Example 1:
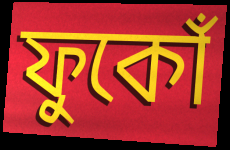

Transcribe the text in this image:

ফুকোঁ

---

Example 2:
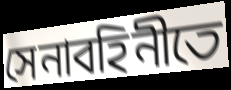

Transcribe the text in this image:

সেনাবহিনীতে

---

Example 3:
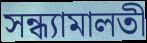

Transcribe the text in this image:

সন্ধ্যামালতী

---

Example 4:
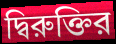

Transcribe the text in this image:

দ্বিরুক্তির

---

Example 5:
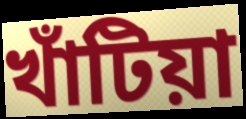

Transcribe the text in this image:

খাঁটিয়া